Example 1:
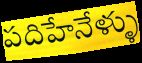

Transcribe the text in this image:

పదిహేనేళ్ళు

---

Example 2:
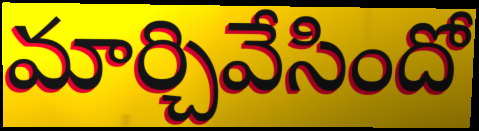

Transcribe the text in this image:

మార్చివేసిందో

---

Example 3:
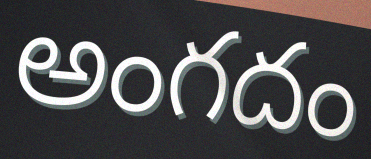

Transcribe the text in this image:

అంగదం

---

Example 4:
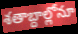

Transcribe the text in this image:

శతాబ్దాల్లోనూ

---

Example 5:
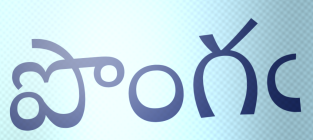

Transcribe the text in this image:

పొంగఁ